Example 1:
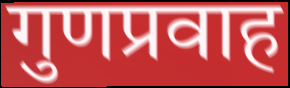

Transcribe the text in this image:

गुणप्रवाह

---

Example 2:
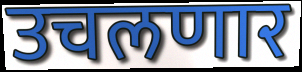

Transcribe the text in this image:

उचलणार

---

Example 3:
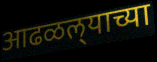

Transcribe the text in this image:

आढळल्याच्या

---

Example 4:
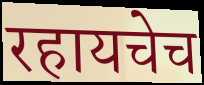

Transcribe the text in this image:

रहायचेच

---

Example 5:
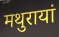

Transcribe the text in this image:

मथुरायां